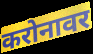
करोनावर